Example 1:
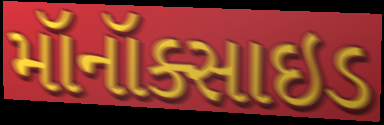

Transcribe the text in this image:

મૉનૉક્સાઇડ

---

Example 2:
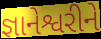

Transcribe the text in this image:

જ્ઞાનેશ્વરીને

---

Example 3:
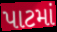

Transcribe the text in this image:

પાટમાં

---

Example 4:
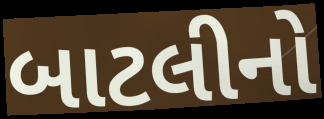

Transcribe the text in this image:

બાટલીનો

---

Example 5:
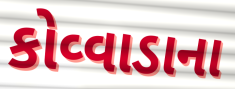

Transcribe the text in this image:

કોવ્વાડાના